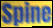
Spine